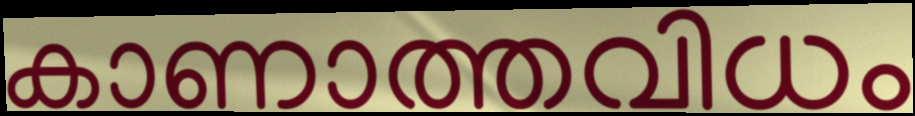
കാണാത്തവിധം